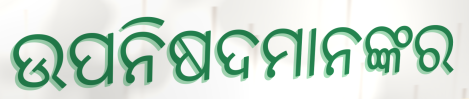
ଉପନିଷଦମାନଙ୍କର